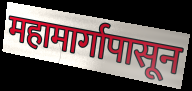
महामार्गापासून